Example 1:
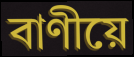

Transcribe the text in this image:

বাণীয়ে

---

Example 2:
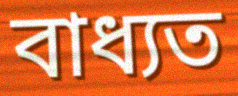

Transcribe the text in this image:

বাধ্যত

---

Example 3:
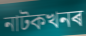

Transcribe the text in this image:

নাটকখনৰ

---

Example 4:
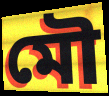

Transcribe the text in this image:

মৌ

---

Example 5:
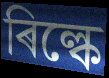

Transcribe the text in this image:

ৰিল্কে